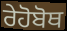
ਰੇਹੋਬੋਥ